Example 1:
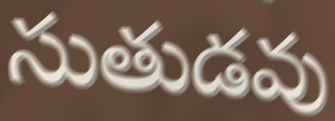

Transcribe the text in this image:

సుతుడవు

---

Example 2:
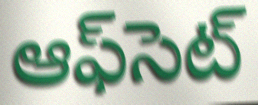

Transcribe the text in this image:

ఆఫ్‌సెట్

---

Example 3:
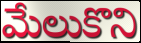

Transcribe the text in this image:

మేలుకొని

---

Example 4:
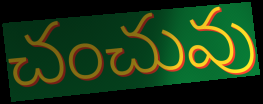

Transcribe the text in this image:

చంచువు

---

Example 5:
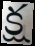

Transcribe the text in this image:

క్ష